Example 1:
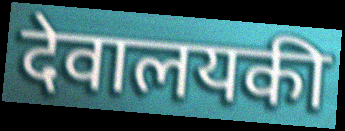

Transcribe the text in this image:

देवालयकी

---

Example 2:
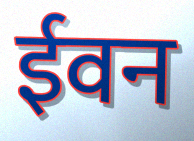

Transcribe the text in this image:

ईवन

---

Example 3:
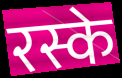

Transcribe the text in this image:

रस्के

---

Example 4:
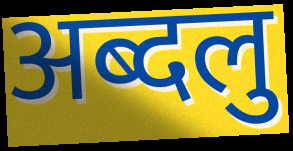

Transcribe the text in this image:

अब्दलु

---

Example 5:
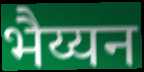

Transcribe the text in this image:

भैय्यन